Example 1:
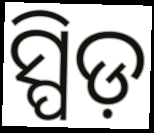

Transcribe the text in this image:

ସ୍ପିଡ଼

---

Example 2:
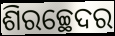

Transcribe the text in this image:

ଶିରଚ୍ଛେଦର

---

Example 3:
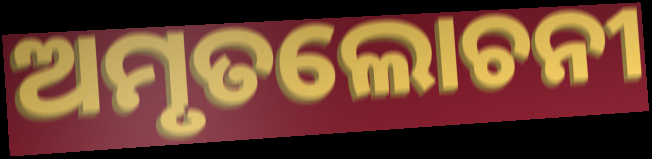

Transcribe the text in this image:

ଅମୃତଲୋଚନୀ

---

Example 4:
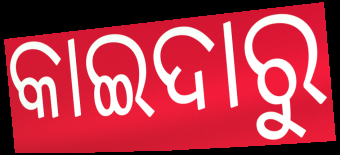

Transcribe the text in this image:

କାଇଦାରୁ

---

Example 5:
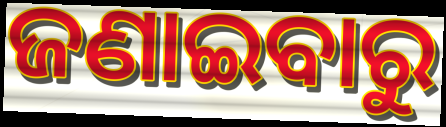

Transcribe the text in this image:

ଜଣାଇବାରୁ